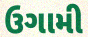
ઉગામી